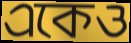
একেও